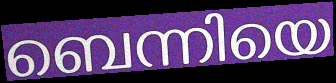
ബെന്നിയെ